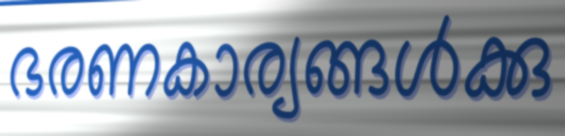
ഭരണകാര്യങ്ങൾക്കു